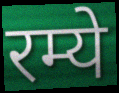
रम्ये